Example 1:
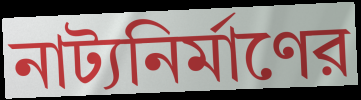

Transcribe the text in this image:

নাট্যনির্মাণের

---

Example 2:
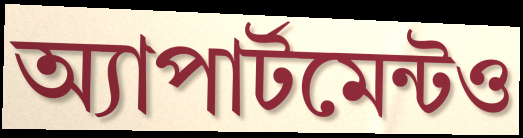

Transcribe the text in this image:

অ্যাপার্টমেন্টও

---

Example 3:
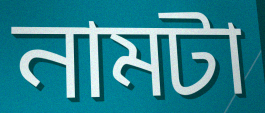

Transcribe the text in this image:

নামটা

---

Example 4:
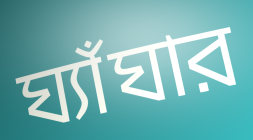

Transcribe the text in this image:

ঘ্যাঁঘার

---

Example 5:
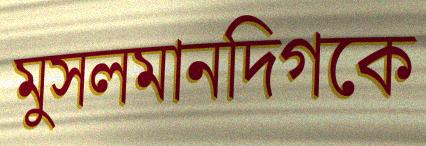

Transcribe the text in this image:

মুসলমানদিগকে